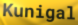
Kunigal